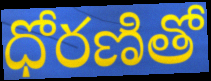
ధోరణితో